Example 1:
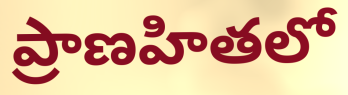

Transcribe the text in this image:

ప్రాణహితలో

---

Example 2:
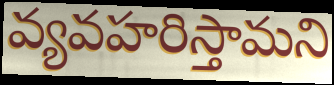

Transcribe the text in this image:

వ్యవహరిస్తామని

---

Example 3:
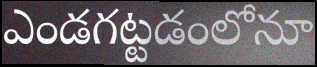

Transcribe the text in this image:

ఎండగట్టడంలోనూ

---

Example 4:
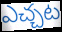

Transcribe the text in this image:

ఎచ్చట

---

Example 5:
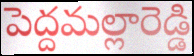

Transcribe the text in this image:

పెద్దమల్లారెడ్డి